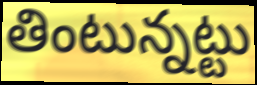
తింటున్నట్టు